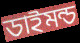
ডাইমন্ড